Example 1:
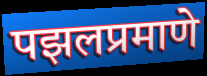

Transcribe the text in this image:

पझलप्रमाणे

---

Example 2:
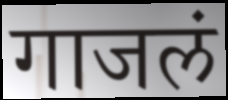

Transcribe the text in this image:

गाजलं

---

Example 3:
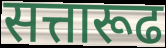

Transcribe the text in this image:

सत्तारूढ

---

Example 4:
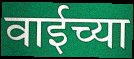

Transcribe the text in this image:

वाईच्या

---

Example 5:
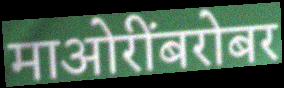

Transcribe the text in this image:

माओरींबरोबर